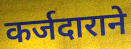
कर्जदाराने